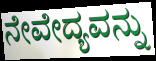
ನೇವೇದ್ಯವನ್ನು